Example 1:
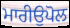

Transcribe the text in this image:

ਮਾਰੀਉਪੋਲ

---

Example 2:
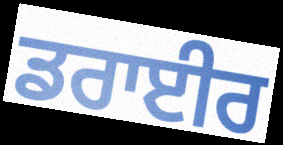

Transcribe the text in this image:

ਡਰਾਈਰ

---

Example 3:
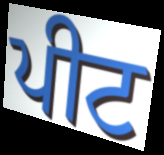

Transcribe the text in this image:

ਪੀਟ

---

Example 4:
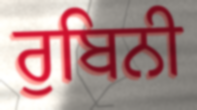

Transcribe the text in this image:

ਰੁਬਿਨੀ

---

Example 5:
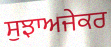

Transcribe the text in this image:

ਸੁਝਾਅਜੇਕਰ